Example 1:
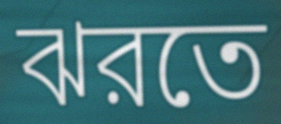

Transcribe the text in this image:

ঝরতে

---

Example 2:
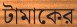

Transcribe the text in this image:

টামাকের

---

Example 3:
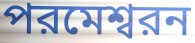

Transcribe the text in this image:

পরমেশ্বরন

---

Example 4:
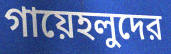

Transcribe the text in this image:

গায়েহলুদের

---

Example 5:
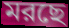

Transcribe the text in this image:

মরছে